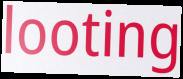
looting